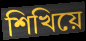
শিখিয়ে